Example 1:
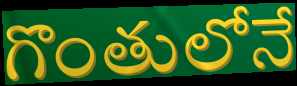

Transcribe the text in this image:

గొంతులోనే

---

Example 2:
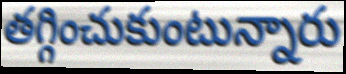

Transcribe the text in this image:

తగ్గించుకుంటున్నారు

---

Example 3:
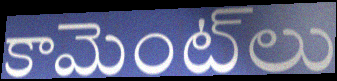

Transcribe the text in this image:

కామెంట్‌లు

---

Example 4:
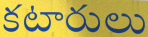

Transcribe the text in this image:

కటారులు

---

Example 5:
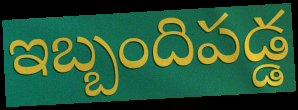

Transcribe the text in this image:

ఇబ్బందిపడ్డ